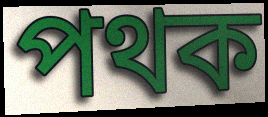
পথক